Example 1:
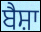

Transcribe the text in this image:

ਬੈਸ਼ਾ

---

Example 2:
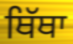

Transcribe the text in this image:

ਥਿੱਥਾ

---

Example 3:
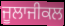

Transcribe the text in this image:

ਜੂਲਾਜੀਕਲ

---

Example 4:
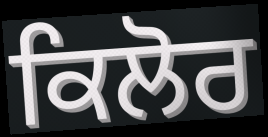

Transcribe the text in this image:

ਕਿਲੋਰ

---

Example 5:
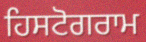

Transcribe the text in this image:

ਹਿਸਟੋਗਰਾਮ